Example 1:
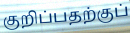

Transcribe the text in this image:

குறிப்பதற்குப்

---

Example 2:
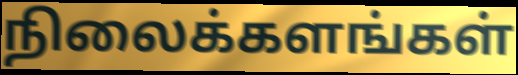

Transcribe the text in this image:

நிலைக்களங்கள்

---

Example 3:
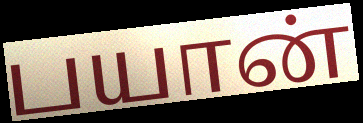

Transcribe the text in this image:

பயான்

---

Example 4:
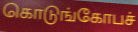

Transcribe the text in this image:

கொடுங்கோபச்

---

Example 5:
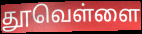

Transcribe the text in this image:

தூவெள்ளை